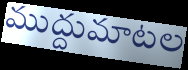
ముద్దుమాటల